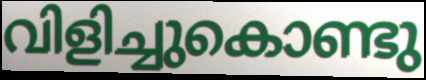
വിളിച്ചുകൊണ്ടു